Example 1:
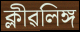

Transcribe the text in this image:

ক্লীৱলিঙ্গ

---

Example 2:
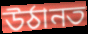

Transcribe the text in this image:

উঠানত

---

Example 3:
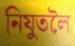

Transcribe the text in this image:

নিযুতলৈ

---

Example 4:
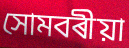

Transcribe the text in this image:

সোমবৰীয়া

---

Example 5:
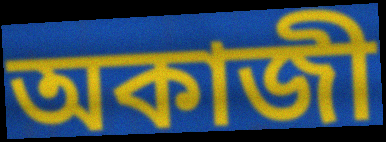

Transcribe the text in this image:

অকাজী